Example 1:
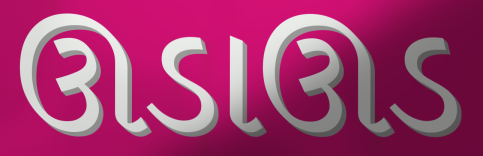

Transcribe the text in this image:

ઊડાઊડ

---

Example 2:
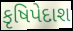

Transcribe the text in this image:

કૃષિપેદાશ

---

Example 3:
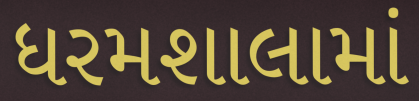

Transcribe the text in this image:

ધરમશાલામાં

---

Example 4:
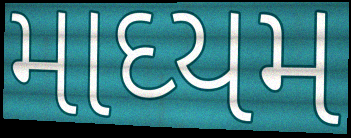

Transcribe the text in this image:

માઘ્યમ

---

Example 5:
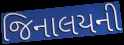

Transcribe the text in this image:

જિનાલયની